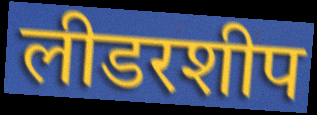
लीडरशीप